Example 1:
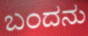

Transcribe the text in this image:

ಬಂದನು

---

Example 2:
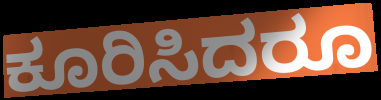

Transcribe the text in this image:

ಕೂರಿಸಿದರೂ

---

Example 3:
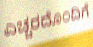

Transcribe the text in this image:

ಎಚ್ಚರದೊಂದಿಗೆ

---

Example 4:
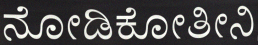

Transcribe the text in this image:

ನೋಡಿಕೋತೀನಿ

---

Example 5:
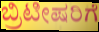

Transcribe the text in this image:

ಬ್ರಿಟೀಷರಿಗೆ